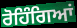
ਰੋਹਿੰਗਿਆਂ